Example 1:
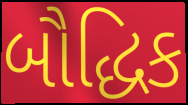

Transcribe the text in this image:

બૌદ્ધિક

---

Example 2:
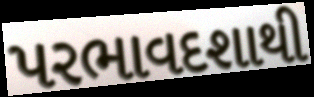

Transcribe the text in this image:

પરભાવદશાથી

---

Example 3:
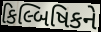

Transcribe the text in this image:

કિલ્બિષિકને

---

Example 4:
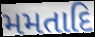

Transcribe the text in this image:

મમતાદિ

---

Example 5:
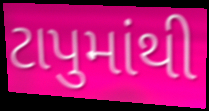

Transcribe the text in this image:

ટાપુમાંથી